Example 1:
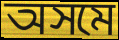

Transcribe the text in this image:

অসমে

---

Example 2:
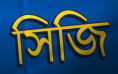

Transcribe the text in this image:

সিজি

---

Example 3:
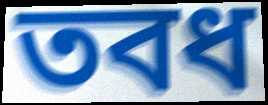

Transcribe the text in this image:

তবধ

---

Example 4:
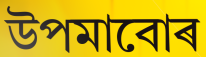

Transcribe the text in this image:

উপমাবোৰ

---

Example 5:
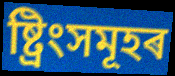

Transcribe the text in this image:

ষ্ট্ৰিংসমূহৰ